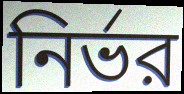
নির্ভর